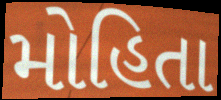
મોહિતા